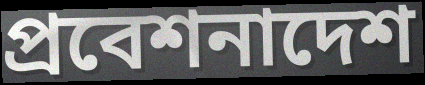
প্রবেশনাদেশ